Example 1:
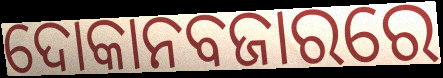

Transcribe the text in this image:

ଦୋକାନବଜାରରେ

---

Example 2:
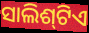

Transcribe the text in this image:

ସାଲିଶ୍‌ଟିଏ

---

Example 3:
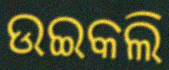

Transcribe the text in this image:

ଉଇକଲି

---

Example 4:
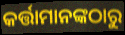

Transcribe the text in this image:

କର୍ତ୍ତାମାନଙ୍କଠାରୁ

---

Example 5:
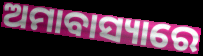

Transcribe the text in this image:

ଅମାବାସ୍ୟାରେ